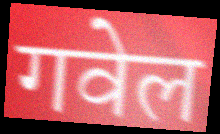
गवेल